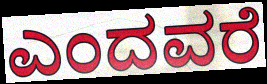
ಎಂದವರೆ